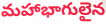
మహాభాగులైన